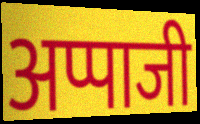
अप्पाजी